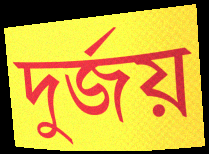
দুর্জয়